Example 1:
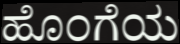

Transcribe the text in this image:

ಹೊಂಗೆಯ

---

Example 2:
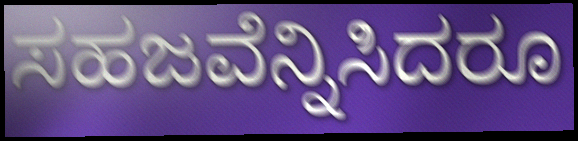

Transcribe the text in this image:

ಸಹಜವೆನ್ನಿಸಿದರೂ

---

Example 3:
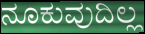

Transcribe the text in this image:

ನೂಕುವುದಿಲ್ಲ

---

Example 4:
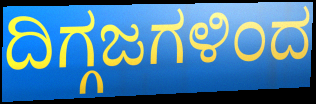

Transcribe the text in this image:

ದಿಗ್ಗಜಗಳಿಂದ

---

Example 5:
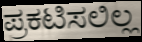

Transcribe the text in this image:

ಪ್ರಕಟಿಸಲಿಲ್ಲ